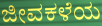
ಜೀವಕಳೆಯ